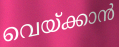
വെയ്ക്കാൻ